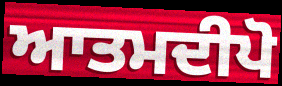
ਆਤਮਦੀਪੋ